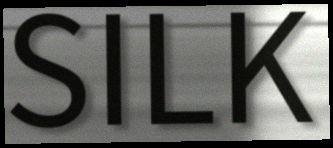
SILK